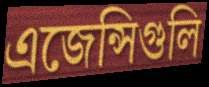
এজেন্সিগুলি